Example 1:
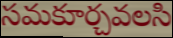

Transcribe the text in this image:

సమకూర్చవలసి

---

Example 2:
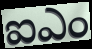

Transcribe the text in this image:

ఐఎం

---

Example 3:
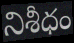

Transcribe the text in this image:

నిశీధం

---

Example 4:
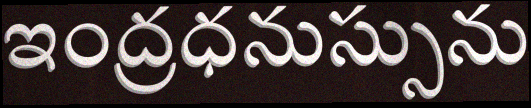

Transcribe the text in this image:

ఇంద్రధనుస్సును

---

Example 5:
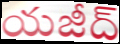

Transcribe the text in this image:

యజీద్